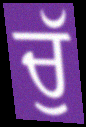
ਚੁੱ